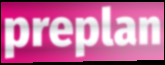
preplan